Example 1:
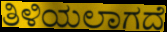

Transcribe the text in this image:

ತಿಳಿಯಲಾಗದೆ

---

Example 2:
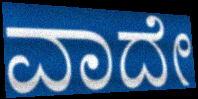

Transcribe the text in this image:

ವಾದೇ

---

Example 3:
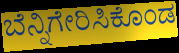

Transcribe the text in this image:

ಬೆನ್ನಿಗೇರಿಸಿಕೊಂಡ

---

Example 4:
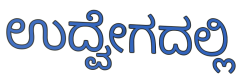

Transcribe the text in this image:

ಉದ್ವೇಗದಲ್ಲಿ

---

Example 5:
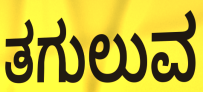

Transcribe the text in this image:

ತಗುಲುವ